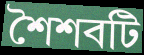
শৈশবটি